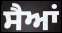
ਸੈਆਂ